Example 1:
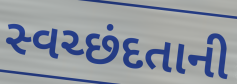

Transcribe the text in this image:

સ્વચ્છંદતાની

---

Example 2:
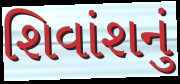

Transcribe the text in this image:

શિવાંશનું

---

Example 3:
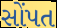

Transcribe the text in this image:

સોંપત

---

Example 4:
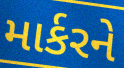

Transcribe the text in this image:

માર્કરને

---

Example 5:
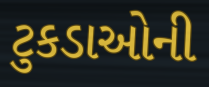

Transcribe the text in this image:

ટુકડાઓની